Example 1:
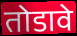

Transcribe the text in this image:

तोडावे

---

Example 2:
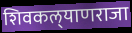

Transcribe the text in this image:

शिवकल्याणराजा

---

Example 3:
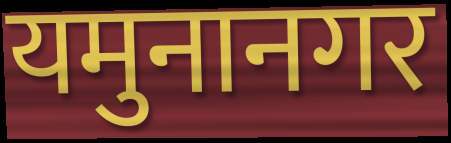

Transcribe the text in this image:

यमुनानगर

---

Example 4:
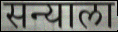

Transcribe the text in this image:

सन्याला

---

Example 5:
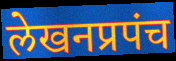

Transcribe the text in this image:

लेखनप्रपंच